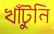
খাঁটুনি